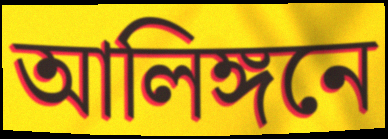
আলিঙ্গনে